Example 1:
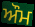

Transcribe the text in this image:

ਔਮ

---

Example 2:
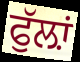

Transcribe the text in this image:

ਫੁੱਲ਼ਾਂ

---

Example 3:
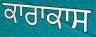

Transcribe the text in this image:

ਕਾਰਾਕਾਸ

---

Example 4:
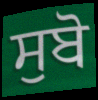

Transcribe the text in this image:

ਸੁਬੋ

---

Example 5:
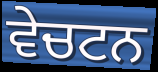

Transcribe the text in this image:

ਵੇਚਟਨ